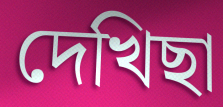
দেখিছা